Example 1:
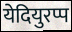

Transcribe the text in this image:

येदियुरप्प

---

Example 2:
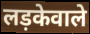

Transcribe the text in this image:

लड़केवाले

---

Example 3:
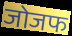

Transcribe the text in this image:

जोजफ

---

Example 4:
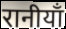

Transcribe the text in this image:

रानीयाँ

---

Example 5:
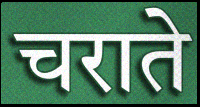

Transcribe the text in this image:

चराते